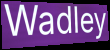
Wadley